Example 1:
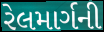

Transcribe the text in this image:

રેલમાર્ગની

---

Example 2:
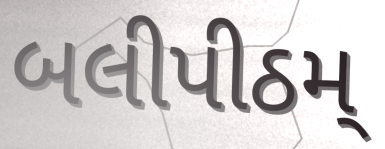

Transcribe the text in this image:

બલીપીઠમ્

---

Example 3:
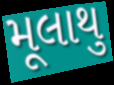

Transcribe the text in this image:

મૂલાથુ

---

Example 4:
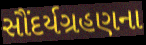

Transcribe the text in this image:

સૌંદર્યગ્રહણના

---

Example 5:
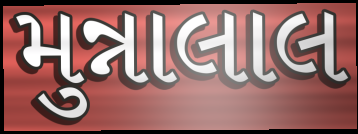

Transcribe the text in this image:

મુન્નાલાલ